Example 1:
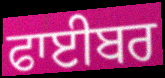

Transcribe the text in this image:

ਫਾਈਬਰ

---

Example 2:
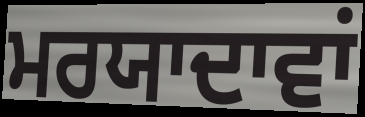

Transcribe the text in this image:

ਮਰਯਾਦਾਵਾਂ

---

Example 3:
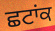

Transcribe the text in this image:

ਛਟਾਂਕ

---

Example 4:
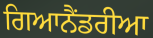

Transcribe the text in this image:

ਗਿਆਨੈਂਡਰੀਆ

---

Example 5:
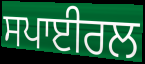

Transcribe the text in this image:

ਸਪਾਈਰਲ